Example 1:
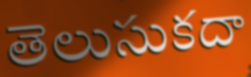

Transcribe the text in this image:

తెలుసుకదా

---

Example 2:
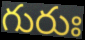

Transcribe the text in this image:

గురుః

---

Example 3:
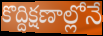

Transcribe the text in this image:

కొద్దిక్షణాల్లోనే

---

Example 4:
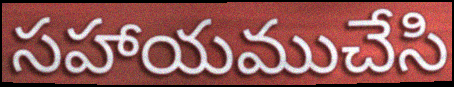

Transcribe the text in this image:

సహాయముచేసి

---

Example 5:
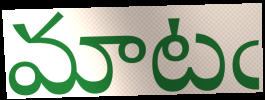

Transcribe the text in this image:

మాటఁ